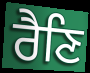
ਰੈਣਿ